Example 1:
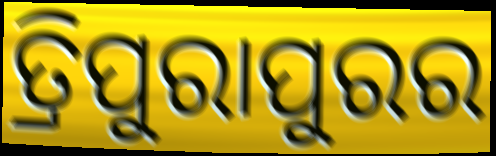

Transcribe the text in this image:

ତ୍ରିପୁରାପୁରର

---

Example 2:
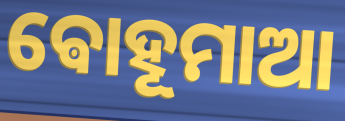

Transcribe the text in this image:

ଵୋହୂମାଆ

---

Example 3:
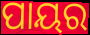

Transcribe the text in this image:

ପାୟର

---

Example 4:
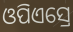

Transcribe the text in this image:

ଓପିଏସ୍ରେ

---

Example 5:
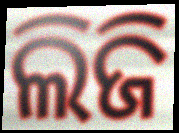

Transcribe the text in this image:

ଲିଜି